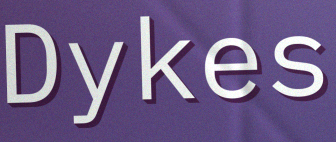
Dykes